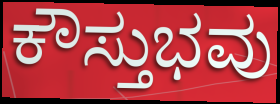
ಕೌಸ್ತುಭವು